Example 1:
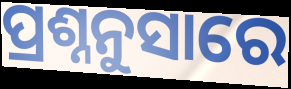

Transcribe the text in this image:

ପ୍ରଶ୍ନନୁସାରେ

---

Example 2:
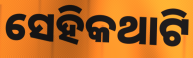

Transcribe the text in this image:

ସେହିକଥାଟି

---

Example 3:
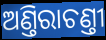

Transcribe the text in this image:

ଅଣ୍ତିରାଚଣ୍ତୀ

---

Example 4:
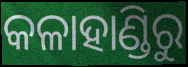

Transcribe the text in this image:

କଳାହାଣ୍ଡିରୁ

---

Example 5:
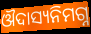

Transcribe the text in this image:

ଔଦାସ୍ୟନିମଗ୍ନ